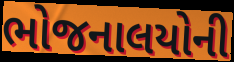
ભોજનાલયોની